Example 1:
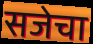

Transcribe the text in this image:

सजेचा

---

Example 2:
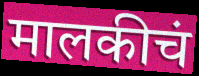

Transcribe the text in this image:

मालकीचं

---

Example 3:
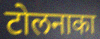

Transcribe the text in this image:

टोलनाका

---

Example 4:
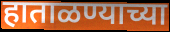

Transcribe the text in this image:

हाताळण्याच्या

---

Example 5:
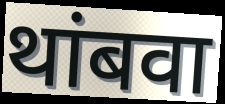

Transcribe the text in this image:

थांबवा